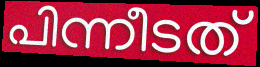
പിന്നീടത്